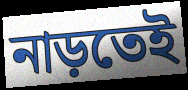
নাড়তেই